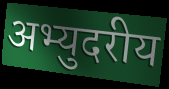
अभ्युदरीय